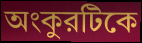
অংকুরটিকে